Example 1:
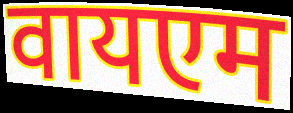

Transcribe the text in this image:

वायएम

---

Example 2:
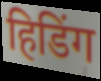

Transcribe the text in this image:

हिडिंग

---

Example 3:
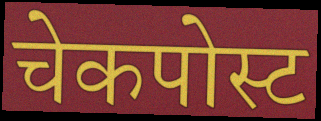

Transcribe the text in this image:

चेकपोस्ट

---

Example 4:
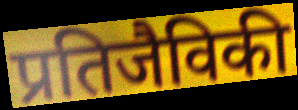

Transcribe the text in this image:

प्रतिजैविकी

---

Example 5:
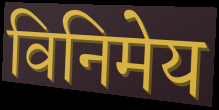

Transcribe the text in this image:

विनिमेय